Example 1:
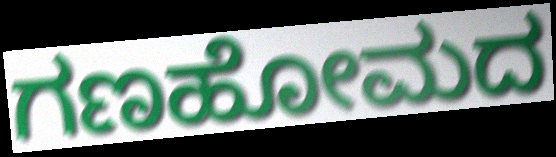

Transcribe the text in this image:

ಗಣಹೋಮದ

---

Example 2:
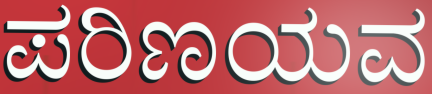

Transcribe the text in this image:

ಪರಿಣಯವ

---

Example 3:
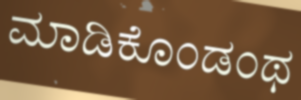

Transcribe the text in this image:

ಮಾಡಿಕೊಂಡಂಥ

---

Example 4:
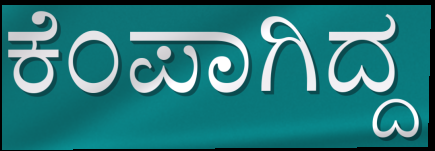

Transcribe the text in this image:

ಕೆಂಪಾಗಿದ್ದ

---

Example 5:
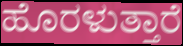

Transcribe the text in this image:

ಹೊರಳುತ್ತಾರೆ